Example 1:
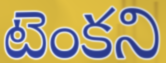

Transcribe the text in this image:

టెంకని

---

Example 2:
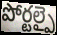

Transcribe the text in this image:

పోర్టల్పై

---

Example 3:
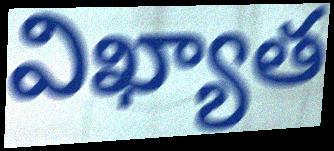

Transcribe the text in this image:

విఖ్యాత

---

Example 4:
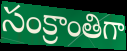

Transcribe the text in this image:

సంక్రాంతిగా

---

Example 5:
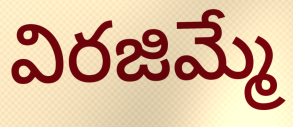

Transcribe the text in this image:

విరజిమ్మే